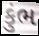
કુંભ